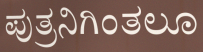
ಪುತ್ರನಿಗಿಂತಲೂ